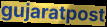
gujaratpost